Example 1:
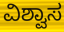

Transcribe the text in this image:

ವಿಶ್ವಾಸ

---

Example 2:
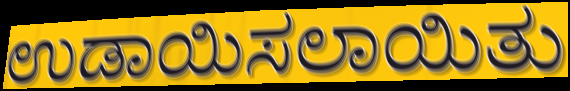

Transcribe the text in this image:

ಉಡಾಯಿಸಲಾಯಿತು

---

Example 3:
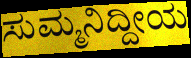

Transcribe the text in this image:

ಸುಮ್ಮನಿದ್ದೀಯ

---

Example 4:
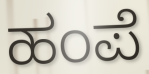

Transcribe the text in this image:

ಹಂಪೆ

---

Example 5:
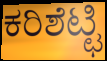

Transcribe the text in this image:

ಕರಿಶೆಟ್ಟಿ